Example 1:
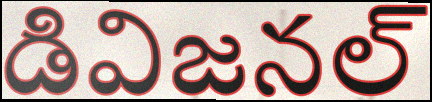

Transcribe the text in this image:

డివిజనల్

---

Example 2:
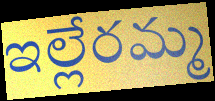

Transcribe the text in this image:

ఇల్లేరమ్మ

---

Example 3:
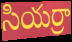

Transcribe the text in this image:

సియర్రా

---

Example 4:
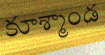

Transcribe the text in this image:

కూశ్మాండ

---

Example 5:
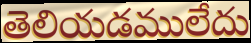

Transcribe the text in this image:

తెలియడములేదు